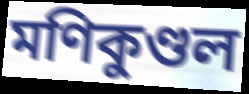
মণিকুণ্ডল